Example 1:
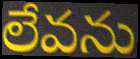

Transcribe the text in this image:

లేవను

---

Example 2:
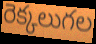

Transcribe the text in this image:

రెక్కలుగల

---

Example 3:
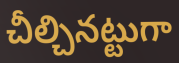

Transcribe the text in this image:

చీల్చినట్టుగా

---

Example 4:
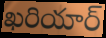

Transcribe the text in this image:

ఖరియార్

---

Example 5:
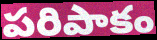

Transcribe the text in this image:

పరిపాకం